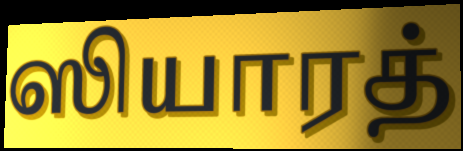
ஸியாரத்